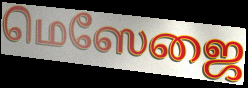
மெஸேஜை